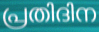
പ്രതിദിന